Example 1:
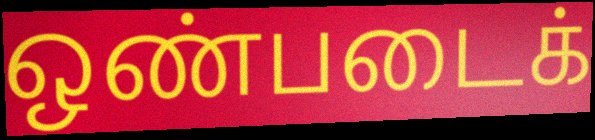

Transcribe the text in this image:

ஒண்படைக்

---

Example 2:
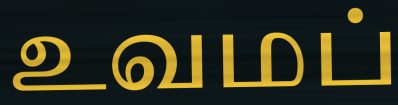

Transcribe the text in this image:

உவமப்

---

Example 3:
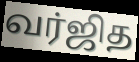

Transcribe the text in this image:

வர்ஜித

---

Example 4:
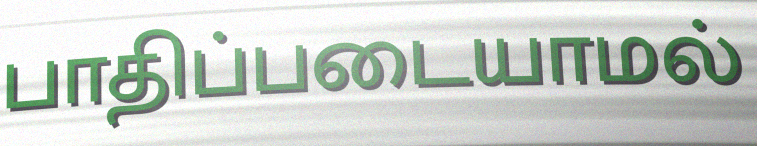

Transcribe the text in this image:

பாதிப்படையாமல்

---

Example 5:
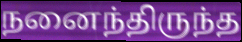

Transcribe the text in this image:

நனைந்திருந்த